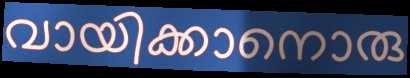
വായിക്കാനൊരു